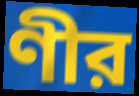
ণীর